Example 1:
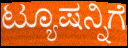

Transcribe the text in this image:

ಟ್ಯೂಷನ್ನಿಗೆ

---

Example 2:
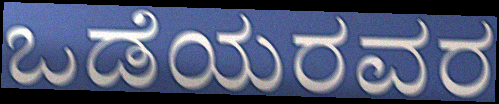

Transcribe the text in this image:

ಒಡೆಯರವರ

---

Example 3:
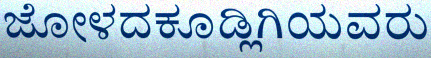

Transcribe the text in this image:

ಜೋಳದಕೂಡ್ಲಿಗಿಯವರು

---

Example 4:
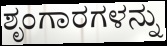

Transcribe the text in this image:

ಶೃಂಗಾರಗಳನ್ನು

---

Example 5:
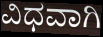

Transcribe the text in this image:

ವಿಧವಾಗಿ